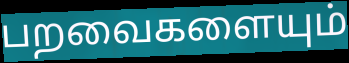
பறவைகளையும்